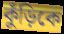
কুঁড়িকে